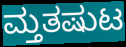
ಮ್ತತಷುಟ